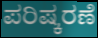
ಪರಿಷ್ಕರಣೆ